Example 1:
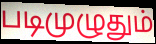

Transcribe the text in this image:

படிமுழுதும்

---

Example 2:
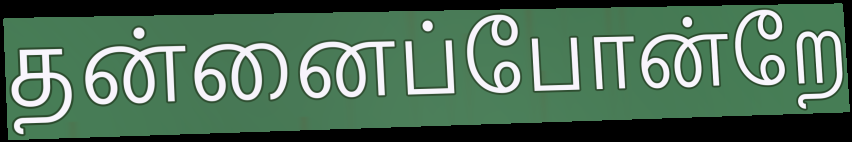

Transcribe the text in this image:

தன்னைப்போன்றே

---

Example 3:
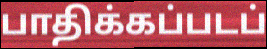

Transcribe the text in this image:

பாதிக்கப்படப்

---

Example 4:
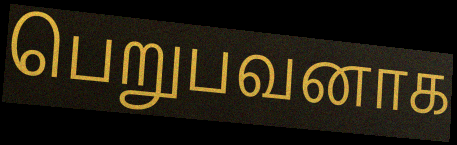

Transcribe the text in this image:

பெறுபவனாக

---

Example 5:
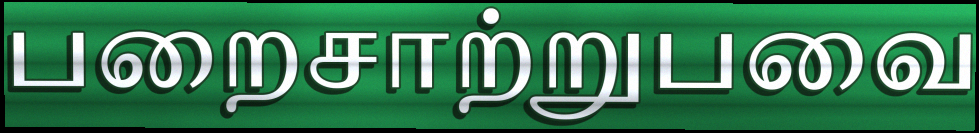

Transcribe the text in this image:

பறைசாற்றுபவை